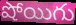
షోయిగు